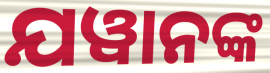
ଯୱାନଙ୍କ